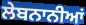
ਲੇਬਨਾਨੀਆਂ